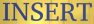
INSERT